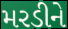
મરડીને